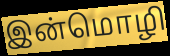
இன்மொழி